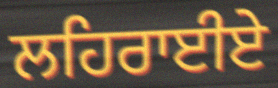
ਲਹਿਰਾਈਏ